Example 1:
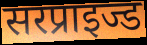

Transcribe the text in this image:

सरप्राइज्ड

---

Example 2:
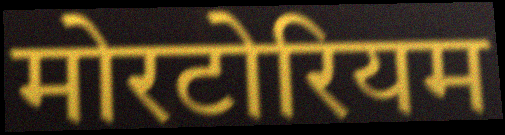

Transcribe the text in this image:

मोरटोरियम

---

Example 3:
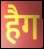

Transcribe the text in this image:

हैग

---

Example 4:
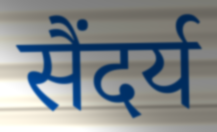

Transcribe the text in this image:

सैंदर्य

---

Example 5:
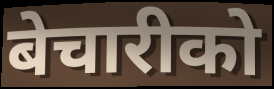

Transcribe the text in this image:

बेचारीको